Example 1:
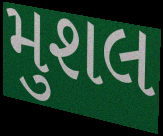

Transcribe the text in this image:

મુશલ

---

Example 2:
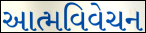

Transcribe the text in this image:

આત્મવિવેચન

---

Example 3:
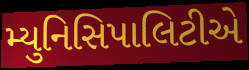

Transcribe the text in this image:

મ્યુનિસિપાલિટીએ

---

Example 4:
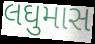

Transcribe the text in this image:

લઘુમાસ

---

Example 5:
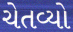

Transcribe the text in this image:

ચેતવ્યો